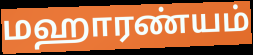
மஹாரண்யம்